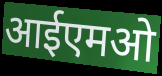
आईएमओ